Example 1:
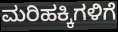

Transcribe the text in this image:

ಮರಿಹಕ್ಕಿಗಳಿಗೆ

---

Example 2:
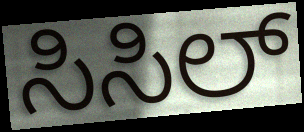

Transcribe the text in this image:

ಸಿಸಿಲ್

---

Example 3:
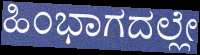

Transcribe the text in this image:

ಹಿಂಭಾಗದಲ್ಲೇ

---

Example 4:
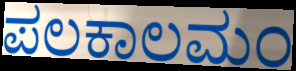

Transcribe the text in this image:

ಪಲಕಾಲಮಂ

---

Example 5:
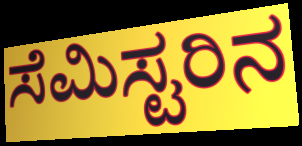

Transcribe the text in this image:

ಸೆಮಿಸ್ಟರಿನ